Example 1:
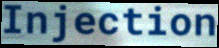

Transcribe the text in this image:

Injection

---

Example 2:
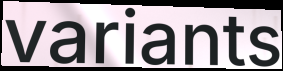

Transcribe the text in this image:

variants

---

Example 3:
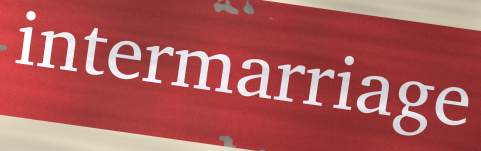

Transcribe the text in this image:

intermarriage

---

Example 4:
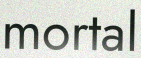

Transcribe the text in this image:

mortal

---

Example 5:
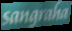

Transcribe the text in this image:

sangraha